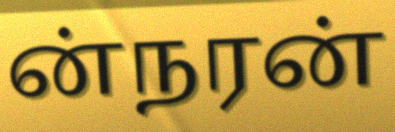
ன்நரன்